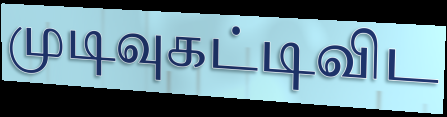
முடிவுகட்டிவிட